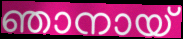
ഞാനായ്